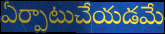
ఏర్పాటుచేయడమే